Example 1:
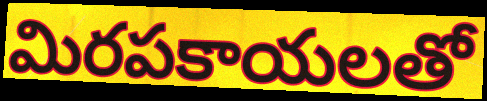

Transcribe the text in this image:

మిరపకాయలతో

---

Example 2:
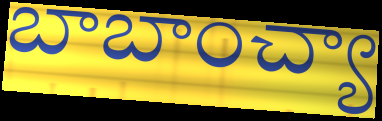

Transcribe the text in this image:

బాబాంచ్యా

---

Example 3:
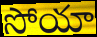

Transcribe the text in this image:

సోయా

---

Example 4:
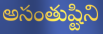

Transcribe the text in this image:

అసంతుష్టిని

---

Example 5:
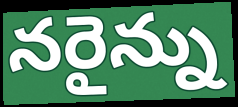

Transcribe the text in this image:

నరైన్ను